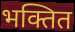
भक्तित